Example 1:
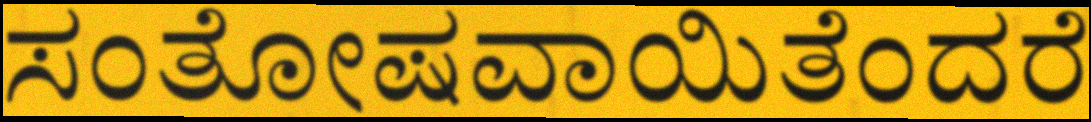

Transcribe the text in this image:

ಸಂತೋಷವಾಯಿತೆಂದರೆ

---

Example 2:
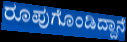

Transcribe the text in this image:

ರೂಪುಗೊಂಡಿದ್ದಾನೆ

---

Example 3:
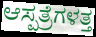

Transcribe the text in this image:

ಆಸ್ಪತ್ರೆಗಳತ್ತ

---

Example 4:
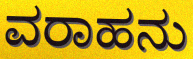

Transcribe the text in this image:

ವರಾಹನು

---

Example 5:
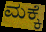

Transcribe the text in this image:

ಮಕ್ಕೆ